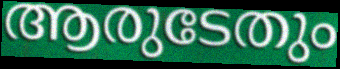
ആരുടേതും